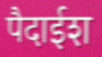
पैदाईश